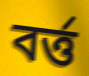
বর্ত্ত